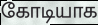
கோடியாக